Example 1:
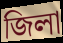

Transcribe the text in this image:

জিলা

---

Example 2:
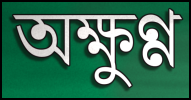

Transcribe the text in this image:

অক্ষুণ্ণ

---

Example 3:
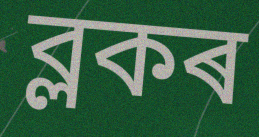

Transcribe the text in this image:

ব্লকৰ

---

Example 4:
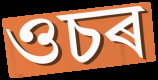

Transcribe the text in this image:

ওচৰ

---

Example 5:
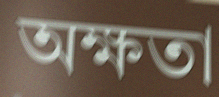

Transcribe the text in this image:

অক্ষতা